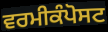
ਵਰਮੀਕੰਪੋਸਟ